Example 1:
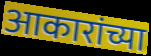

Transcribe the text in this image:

आकारांच्या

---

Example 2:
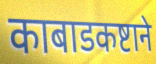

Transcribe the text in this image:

काबाडकष्टाने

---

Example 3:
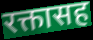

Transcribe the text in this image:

रक्तासह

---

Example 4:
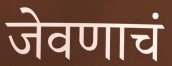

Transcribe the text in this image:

जेवणाचं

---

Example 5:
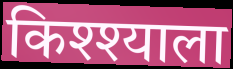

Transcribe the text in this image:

किश्श्याला